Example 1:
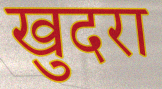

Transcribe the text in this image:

खुदरा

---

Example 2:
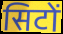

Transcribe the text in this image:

सिटों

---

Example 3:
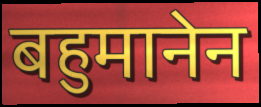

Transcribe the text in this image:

बहुमानेन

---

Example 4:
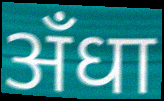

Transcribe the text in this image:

अँधा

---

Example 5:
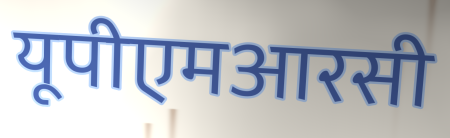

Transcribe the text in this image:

यूपीएमआरसी